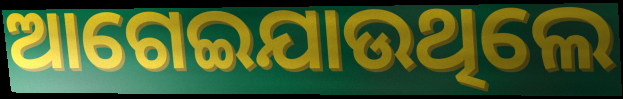
ଆଗେଇଯାଉଥିଲେ